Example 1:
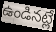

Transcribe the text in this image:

ఉండినట్లే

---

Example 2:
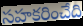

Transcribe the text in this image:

సహకరించేది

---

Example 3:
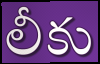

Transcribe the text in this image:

లీకు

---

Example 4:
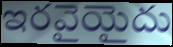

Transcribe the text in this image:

ఇరవైయైదు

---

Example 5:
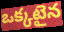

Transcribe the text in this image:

ఒక్కటైన